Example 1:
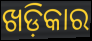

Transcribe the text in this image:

ଖଡ଼ିକାର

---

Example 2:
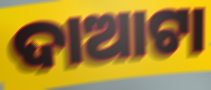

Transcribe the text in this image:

ଦାଆଟା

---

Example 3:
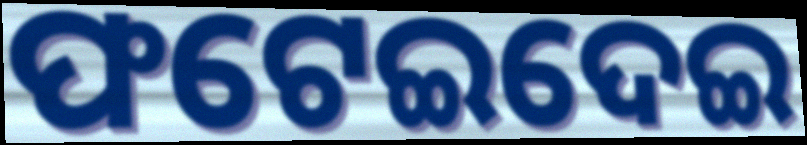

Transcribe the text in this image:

ଫଟେଇଦେଇ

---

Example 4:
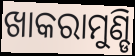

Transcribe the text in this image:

ଖାକରାମୁଣ୍ଡି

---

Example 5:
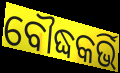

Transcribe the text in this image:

ବୌଦ୍ଧକର୍ଭି